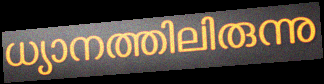
ധ്യാനത്തിലിരുന്നു